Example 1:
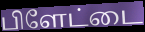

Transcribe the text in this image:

பிளேட்டை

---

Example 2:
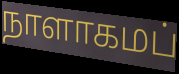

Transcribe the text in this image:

நாளாகமப்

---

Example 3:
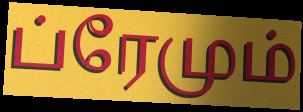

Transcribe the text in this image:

ப்ரேமும்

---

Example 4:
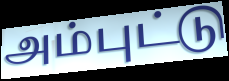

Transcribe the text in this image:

அம்புட்டு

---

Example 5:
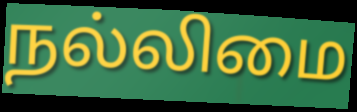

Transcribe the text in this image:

நல்லிமை